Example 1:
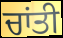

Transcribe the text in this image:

ਚਾਂਤੀ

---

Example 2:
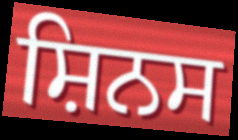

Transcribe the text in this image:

ਸ਼ਿਨਸ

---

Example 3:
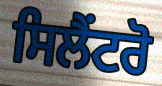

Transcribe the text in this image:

ਸਿਲੈਂਟਰੋ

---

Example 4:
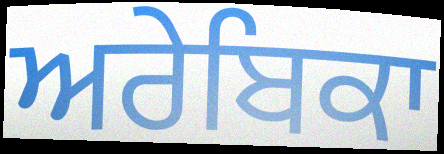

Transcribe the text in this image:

ਅਰੇਬਿਕਾ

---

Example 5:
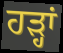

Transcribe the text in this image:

ਹਡ਼੍ਹਾਂ